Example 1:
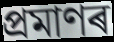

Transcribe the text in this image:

প্ৰমাণৰ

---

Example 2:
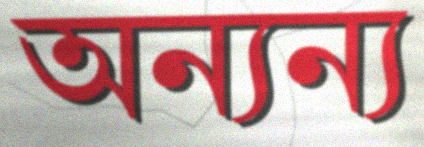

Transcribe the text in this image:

অন্যন্য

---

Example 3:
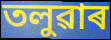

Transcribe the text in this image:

তলুৱাৰ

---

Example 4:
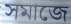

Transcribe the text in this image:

সমাজে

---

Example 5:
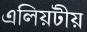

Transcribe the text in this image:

এলিয়টীয়